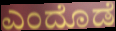
ಎಂದೊಡೆ